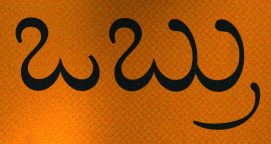
ಒಬ್ರು